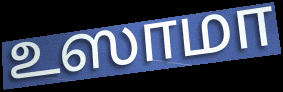
உஸாமா